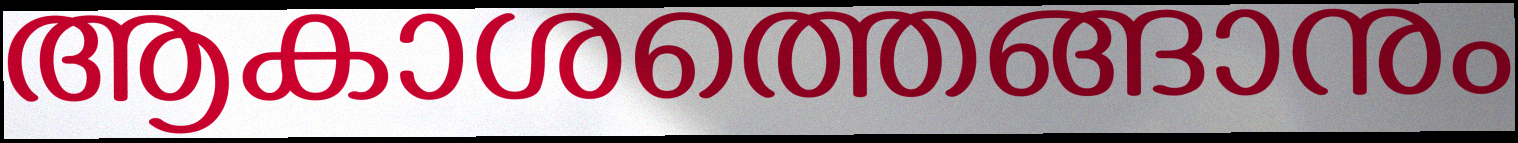
ആകാശത്തെങ്ങാനും